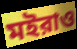
মইরাও